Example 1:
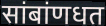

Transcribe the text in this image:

सांबांणधत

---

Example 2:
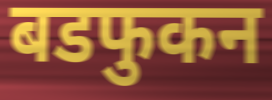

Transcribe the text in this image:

बडफुकन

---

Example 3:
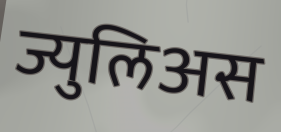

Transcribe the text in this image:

ज्युलिअस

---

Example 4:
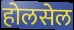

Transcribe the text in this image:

होलसेल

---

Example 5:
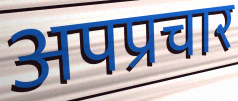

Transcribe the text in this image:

अपप्रचार